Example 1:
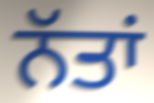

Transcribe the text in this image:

ਨੱਤਾਂ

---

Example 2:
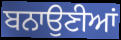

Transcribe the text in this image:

ਬਨਾਉਣੀਆਂ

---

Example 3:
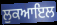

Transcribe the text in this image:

ਲੁਕਆਇਲ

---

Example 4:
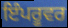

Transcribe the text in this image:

ਇੰਪਰੂਵਰ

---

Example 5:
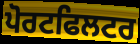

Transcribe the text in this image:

ਪੋਰਟਫਿਲਟਰ